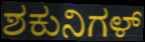
ಶಕುನಿಗಳ್